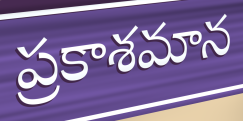
ప్రకాశమాన